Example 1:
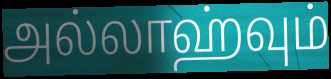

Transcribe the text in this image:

அல்லாஹ்வும்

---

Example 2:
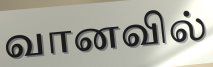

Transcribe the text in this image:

வானவில்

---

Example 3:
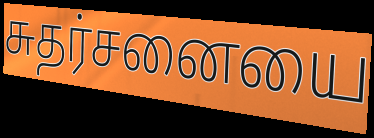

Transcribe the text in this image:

சுதர்சனையை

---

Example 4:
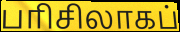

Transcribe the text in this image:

பரிசிலாகப்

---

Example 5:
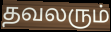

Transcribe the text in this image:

தவலரும்